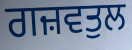
ਗਜ਼ਵਤੁਲ